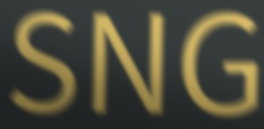
SNG